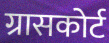
ग्रासकोर्ट